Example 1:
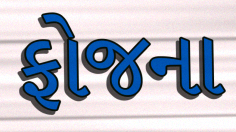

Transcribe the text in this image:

ફોજના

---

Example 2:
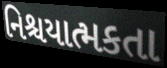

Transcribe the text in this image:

નિશ્ચયાત્મકતા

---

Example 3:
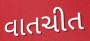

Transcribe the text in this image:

વાતચીત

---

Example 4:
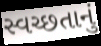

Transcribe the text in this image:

સ્વચ્છતાનું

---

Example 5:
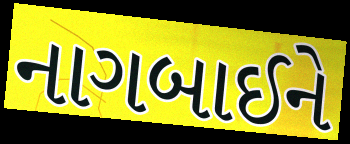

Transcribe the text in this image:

નાગબાઈને